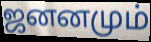
ஜனனமும்